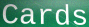
Cards